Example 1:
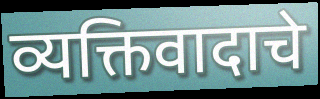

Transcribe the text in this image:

व्यक्तिवादाचे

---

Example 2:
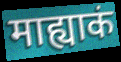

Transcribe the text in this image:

माह्याकं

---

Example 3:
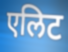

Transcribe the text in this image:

एलिट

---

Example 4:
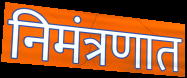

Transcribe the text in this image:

निमंत्रणात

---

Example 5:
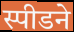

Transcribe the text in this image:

स्पीडने